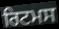
ਰਿਟਮਸ